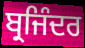
ਬ੍ਰਜਿੰਦਰ